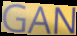
GAN